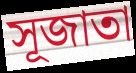
সূজাতা